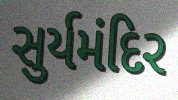
સુર્યમંદિર